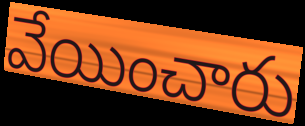
వేయించారు